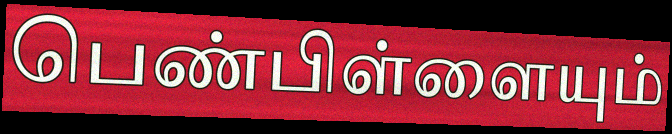
பெண்பிள்ளையும்